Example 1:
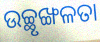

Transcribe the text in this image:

ଉଚ୍ଛୃଙ୍ଖଳତା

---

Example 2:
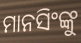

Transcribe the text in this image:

ମାନସିଂଙ୍କୁ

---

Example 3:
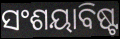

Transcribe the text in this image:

ସଂଶୟାବିଷ୍ଟ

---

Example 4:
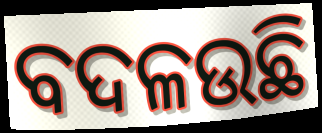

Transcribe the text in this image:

ବଦଳଉଛି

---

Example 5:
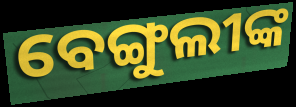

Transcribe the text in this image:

ବେଙ୍ଗୁଲୀଙ୍କ